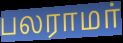
பலராமர்